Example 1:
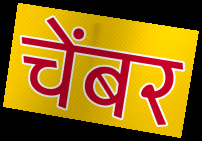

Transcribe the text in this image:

चेंबर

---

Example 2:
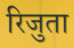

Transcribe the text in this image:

रिजुता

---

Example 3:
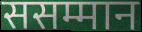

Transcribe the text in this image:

ससम्मान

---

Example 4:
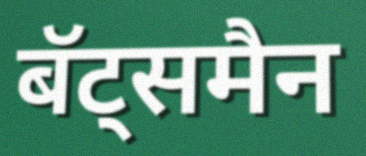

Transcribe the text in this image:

बॅट्समैन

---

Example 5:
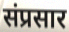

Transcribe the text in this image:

संप्रसार